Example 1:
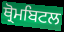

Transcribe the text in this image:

ਥ੍ਰੋਮਬਿਟਲ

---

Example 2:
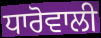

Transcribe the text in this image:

ਧਾਰੋਵਾਲੀ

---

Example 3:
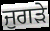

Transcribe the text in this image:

ਜੁਗੜੇ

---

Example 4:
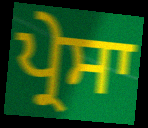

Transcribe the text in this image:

ਪ੍ਰੇਸਾ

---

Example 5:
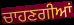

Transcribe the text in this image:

ਚਾਹਣਗੀਆਂ